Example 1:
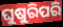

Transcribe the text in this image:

ଘୁଷୁରିପରି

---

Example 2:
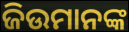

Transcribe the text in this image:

ଜିଉମାନଙ୍କ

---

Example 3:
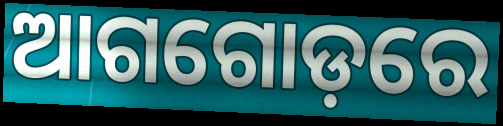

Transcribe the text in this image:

ଆଗଗୋଡ଼ରେ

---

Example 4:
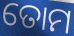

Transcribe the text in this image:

ତୋମ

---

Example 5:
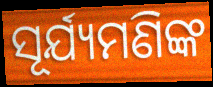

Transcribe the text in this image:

ସୂର୍ଯ୍ୟମଣିଙ୍କ